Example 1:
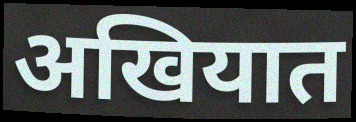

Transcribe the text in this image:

अखियात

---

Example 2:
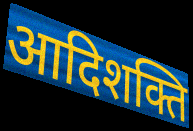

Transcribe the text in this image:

आदिशक्ति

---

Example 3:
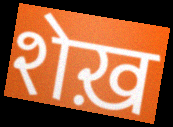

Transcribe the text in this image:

शेख़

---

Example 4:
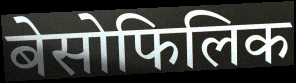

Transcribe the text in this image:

बेसोफिलिक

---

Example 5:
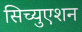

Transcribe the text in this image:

सिच्युएशन